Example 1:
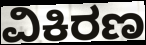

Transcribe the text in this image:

ವಿಕಿರಣ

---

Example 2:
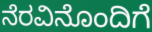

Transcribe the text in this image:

ನೆರವಿನೊಂದಿಗೆ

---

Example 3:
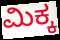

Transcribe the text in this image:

ಮಿಕ್ಕ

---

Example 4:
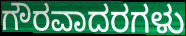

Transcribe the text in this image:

ಗೌರವಾದರಗಳು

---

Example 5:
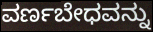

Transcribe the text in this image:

ವರ್ಣಬೇಧವನ್ನು